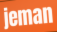
jeman